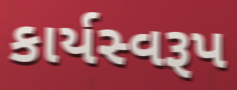
કાર્યસ્વરૂપ